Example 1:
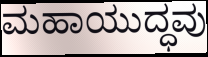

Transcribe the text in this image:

ಮಹಾಯುದ್ಧವು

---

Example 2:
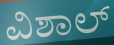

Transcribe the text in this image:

ವಿಶಾಲ್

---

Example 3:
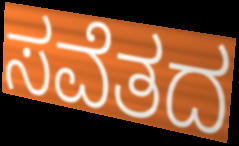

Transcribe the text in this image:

ಸವೆತದ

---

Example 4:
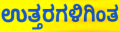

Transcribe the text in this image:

ಉತ್ತರಗಳಿಗಿಂತ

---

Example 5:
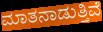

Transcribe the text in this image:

ಮಾತನಾಡುತ್ತಿವೆ